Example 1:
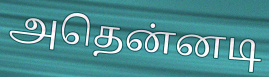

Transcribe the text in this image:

அதென்னடி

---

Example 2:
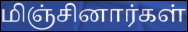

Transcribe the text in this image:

மிஞ்சினார்கள்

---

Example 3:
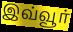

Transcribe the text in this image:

இவ்வூர்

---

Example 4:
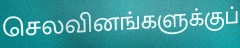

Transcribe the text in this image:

செலவினங்களுக்குப்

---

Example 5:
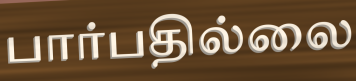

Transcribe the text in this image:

பார்பதில்லை